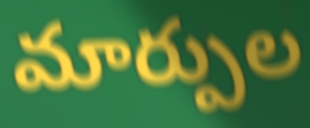
మార్పుల